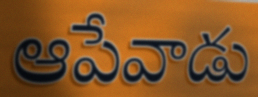
ఆపేవాడు